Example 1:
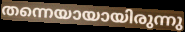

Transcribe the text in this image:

തന്നെയായായിരുന്നു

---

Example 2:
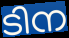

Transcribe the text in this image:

ടിന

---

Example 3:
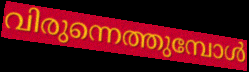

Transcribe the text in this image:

വിരുന്നെത്തുമ്പോൾ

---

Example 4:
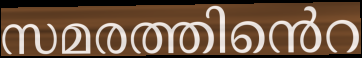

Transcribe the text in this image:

സമരത്തിൻെറ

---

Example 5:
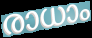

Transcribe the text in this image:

രാധാം